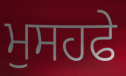
ਮੁਸਹਫੇ